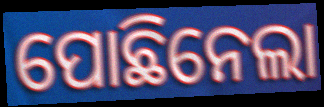
ପୋଛିନେଲା